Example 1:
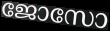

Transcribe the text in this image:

ജോസോ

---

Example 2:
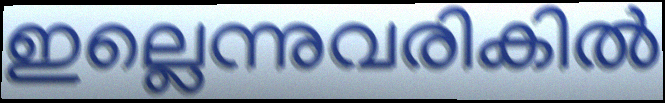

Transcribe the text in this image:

ഇല്ലെന്നുവരികിൽ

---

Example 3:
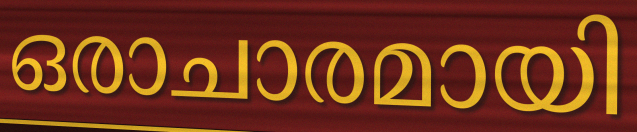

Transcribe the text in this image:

ഒരാചാരമായി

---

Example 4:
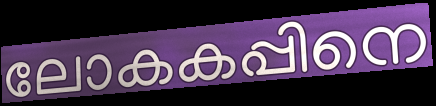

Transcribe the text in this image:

ലോകകപ്പിനെ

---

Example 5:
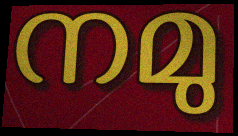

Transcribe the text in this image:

നമു